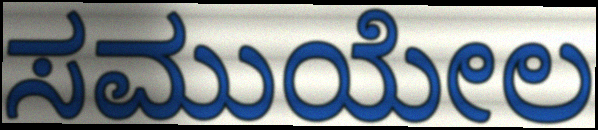
ಸಮುಯೇಲ